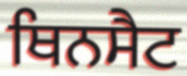
ਥਿਨਸੈਟ